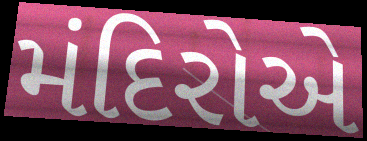
મંદિરોએ